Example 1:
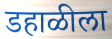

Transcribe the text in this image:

डहाळीला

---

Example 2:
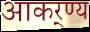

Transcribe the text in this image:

आकर्ण्य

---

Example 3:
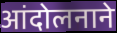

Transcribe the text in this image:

आंदोलनाने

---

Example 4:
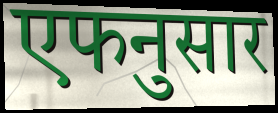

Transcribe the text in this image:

एफनुसार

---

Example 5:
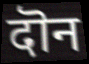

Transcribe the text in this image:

दॊन